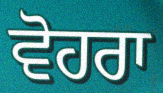
ਵੋਹਰਾ